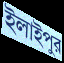
ইলাইপুর